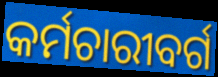
କର୍ମଚାରୀବର୍ଗ